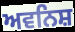
ਅਵਨਿਸ਼